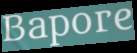
Bapore